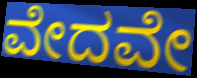
ವೇದವೇ